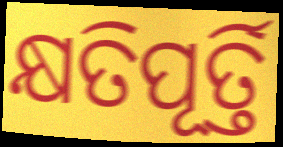
କ୍ଷତିପୂର୍ତ୍ତି